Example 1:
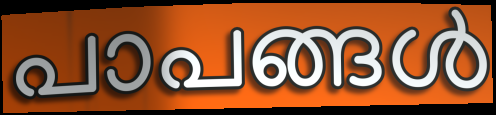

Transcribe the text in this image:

പാപങ്ങൾ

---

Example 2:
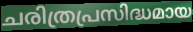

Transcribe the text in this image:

ചരിത്രപ്രസിദ്ധമായ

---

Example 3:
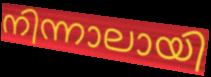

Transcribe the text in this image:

നിന്നാലായി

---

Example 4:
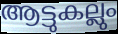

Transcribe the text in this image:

ആട്ടുകല്ലും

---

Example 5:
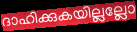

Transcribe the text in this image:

ദാഹിക്കുകയില്ലല്ലോ